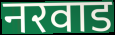
नरवाड